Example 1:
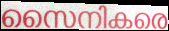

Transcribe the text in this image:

സൈനികരെ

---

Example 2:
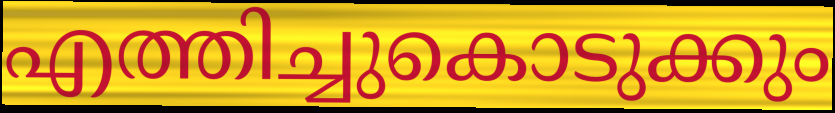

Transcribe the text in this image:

എത്തിച്ചുകൊടുക്കും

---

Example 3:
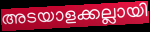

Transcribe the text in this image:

അടയാളക്കല്ലായി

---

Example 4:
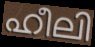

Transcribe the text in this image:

ഹീലി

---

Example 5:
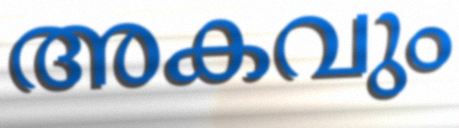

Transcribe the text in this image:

അകവും